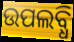
ଉପଲବ୍ଧି